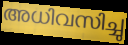
അധിവസിച്ചു